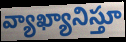
వ్యాఖ్యానిస్తూ